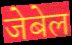
जेबेल